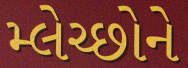
મ્લેચ્છોને